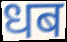
धब